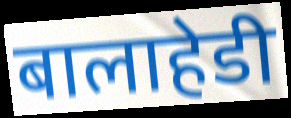
बालाहेडी